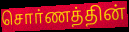
சொர்ணத்தின்